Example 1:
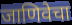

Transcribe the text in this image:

जाणिवेचा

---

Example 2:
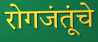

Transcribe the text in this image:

रोगजंतूंचे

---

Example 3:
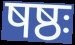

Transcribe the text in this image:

षष्ठः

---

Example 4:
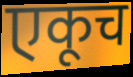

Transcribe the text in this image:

एकूच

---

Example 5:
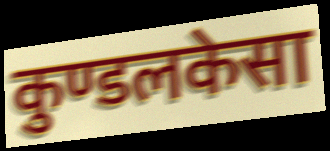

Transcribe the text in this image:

कुण्डलकेसा